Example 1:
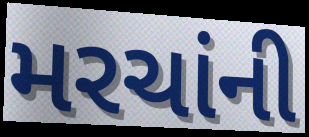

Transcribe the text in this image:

મરચાંની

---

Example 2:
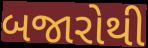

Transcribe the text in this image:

બજારોથી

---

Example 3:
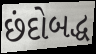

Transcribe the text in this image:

છંદોબદ્ધ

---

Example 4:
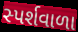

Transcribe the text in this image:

સ્પર્શવાળા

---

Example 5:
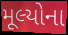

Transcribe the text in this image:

મૂલ્યોના